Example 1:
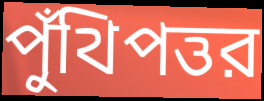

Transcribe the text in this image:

পুঁথিপত্তর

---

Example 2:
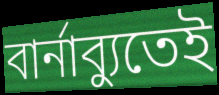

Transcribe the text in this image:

বার্নাব্যুতেই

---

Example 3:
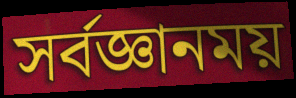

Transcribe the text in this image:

সর্বজ্ঞানময়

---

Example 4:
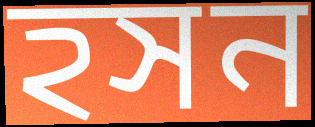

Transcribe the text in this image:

হসন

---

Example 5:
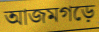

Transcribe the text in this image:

আজমগড়ে